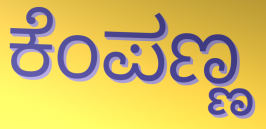
ಕೆಂಪಣ್ಣ